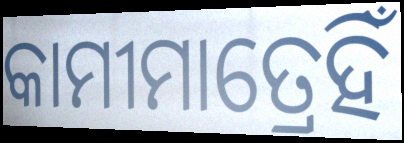
କାମୀମାତ୍ରେହିଁ